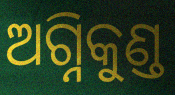
ଅଗ୍ନିକୁଣ୍ଡ